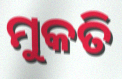
ମୁକତି